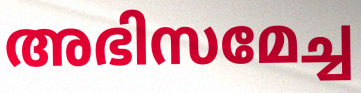
അഭിസമേച്ച